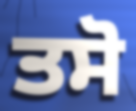
ਤਸੋ